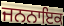
ਜਨਨਾਇਕ